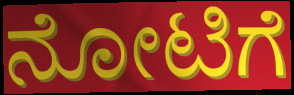
ನೋಟಿಗೆ